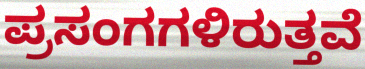
ಪ್ರಸಂಗಗಳಿರುತ್ತವೆ